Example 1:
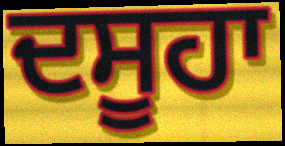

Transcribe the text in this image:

ਦਸੂਹਾ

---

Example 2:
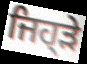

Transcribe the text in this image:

ਜਿਹ੍ੜੇ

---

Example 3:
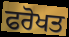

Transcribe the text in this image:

ਫਰੋਖਤ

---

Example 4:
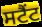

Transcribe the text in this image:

ਸਟੈਂਟ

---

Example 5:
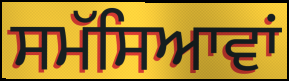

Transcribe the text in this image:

ਸਮੱਸਿਆਵਾਂ